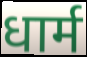
धार्म